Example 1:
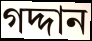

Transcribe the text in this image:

গদ্দান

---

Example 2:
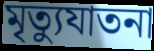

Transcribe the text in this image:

মৃত্যুযাতনা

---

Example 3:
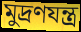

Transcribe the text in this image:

মুদ্রণযন্ত্র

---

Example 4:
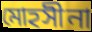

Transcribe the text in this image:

মোহসীনা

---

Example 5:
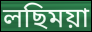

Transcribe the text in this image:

লছিময়া